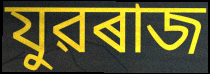
যুৱৰাজ